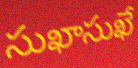
సుఖాసుఖే